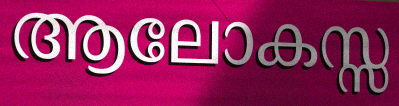
ആലോകസ്സ